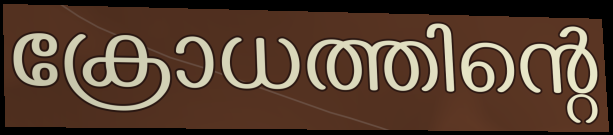
ക്രോധത്തിന്റെ